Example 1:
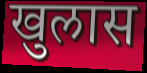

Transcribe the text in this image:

खुलास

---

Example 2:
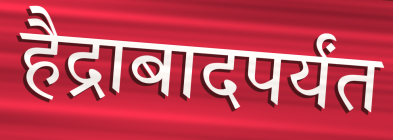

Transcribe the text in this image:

हैद्राबादपर्यंत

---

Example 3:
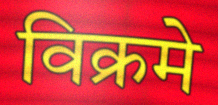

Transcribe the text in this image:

विक्रमे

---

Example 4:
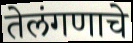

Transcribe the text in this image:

तेलंगणाचे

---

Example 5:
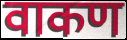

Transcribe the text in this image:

वाकण